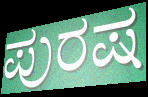
ಪುರಷ